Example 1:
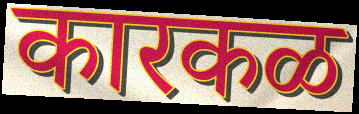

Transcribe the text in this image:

कारकळ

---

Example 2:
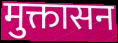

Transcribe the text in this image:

मुक्तासन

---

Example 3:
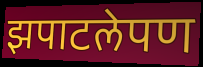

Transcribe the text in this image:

झपाटलेपण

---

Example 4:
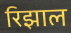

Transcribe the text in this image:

रिझाल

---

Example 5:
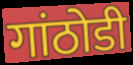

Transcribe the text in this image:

गांठोडी